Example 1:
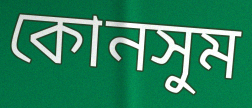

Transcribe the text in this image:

কোনসুম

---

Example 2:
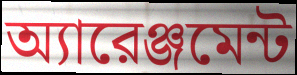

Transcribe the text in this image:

অ্যারেঞ্জমেন্ট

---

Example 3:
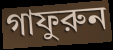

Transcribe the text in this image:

গাফুরুন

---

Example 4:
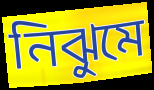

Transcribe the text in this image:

নিঝুমে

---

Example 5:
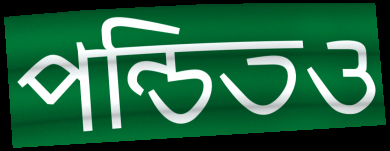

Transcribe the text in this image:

পন্ডিতও